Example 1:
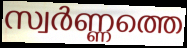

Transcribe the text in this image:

സ്വർണ്ണത്തെ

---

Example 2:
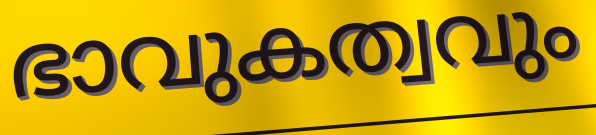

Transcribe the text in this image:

ഭാവുകത്വവും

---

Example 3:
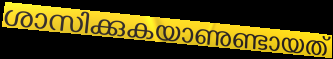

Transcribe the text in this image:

ശാസിക്കുകയാണുണ്ടായത്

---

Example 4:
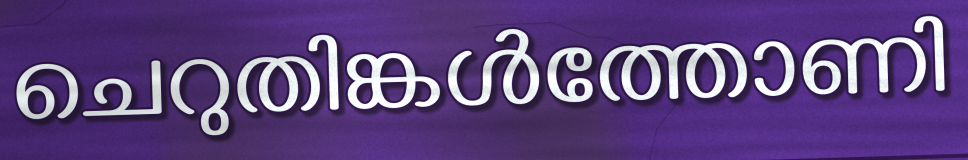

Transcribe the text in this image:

ചെറുതിങ്കൾത്തോണി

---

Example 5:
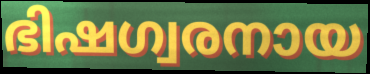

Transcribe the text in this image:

ഭിഷഗ്വരനായ